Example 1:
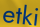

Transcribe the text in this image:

etki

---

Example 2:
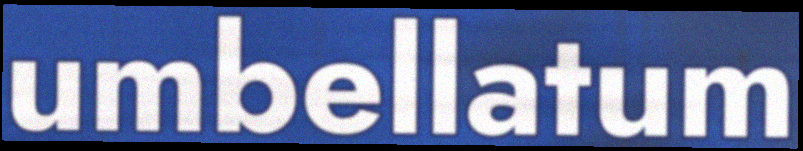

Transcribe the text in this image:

umbellatum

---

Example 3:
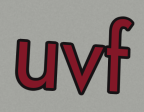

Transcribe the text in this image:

uvf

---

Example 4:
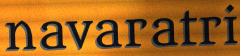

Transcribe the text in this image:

navaratri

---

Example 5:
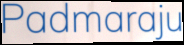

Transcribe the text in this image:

Padmaraju